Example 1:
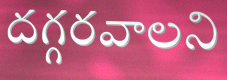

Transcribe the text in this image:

దగ్గరవాలని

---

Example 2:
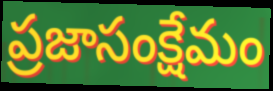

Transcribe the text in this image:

ప్రజాసంక్షేమం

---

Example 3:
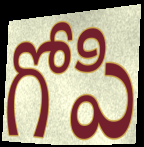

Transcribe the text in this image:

గోపి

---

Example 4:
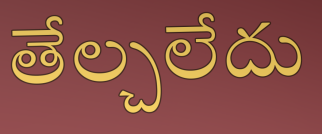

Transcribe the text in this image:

తేల్చలేదు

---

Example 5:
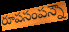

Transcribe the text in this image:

రూపసంపన్నౌ